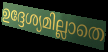
ഉദ്ദേശ്യമില്ലാതെ